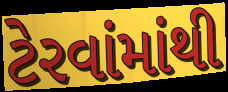
ટેરવાંમાંથી